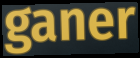
ganer